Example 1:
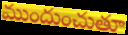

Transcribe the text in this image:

ముందుంచుతూ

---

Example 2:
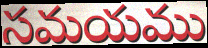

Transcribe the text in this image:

సమయము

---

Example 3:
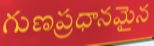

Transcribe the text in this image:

గుణప్రధానమైన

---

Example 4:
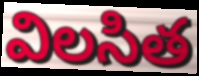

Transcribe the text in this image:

విలసిత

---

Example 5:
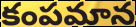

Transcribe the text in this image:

కంపమాన